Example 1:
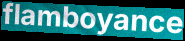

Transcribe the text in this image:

flamboyance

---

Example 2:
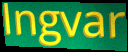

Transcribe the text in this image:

Ingvar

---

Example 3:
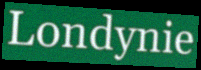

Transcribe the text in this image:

Londynie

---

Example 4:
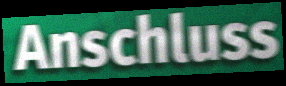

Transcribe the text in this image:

Anschluss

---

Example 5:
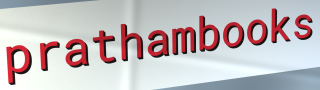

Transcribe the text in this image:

prathambooks